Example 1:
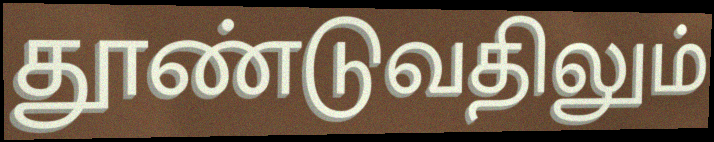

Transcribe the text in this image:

தூண்டுவதிலும்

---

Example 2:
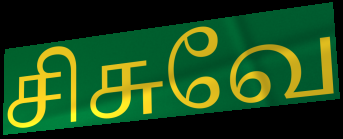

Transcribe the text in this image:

சிசுவே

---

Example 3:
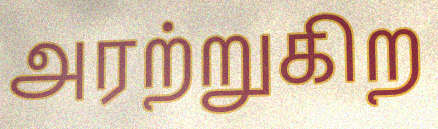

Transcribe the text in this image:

அரற்றுகிற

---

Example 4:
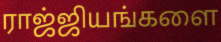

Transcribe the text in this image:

ராஜ்ஜியங்களை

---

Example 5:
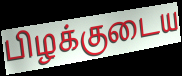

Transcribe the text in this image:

பிழக்குடைய